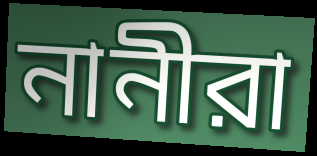
নানীরা